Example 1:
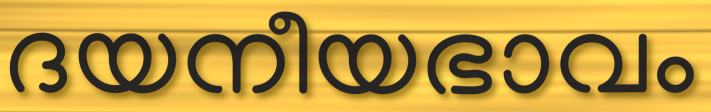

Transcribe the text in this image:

ദയനീയഭാവം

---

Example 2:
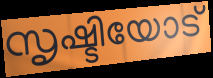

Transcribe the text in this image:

സൃഷ്ടിയോട്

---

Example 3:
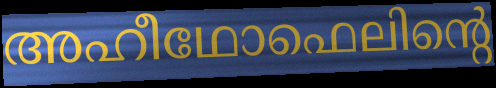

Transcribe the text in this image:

അഹീഥോഫെലിന്റെ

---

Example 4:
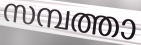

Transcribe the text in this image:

സമ്പത്താ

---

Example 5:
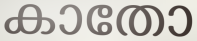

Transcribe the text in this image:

കാതോ